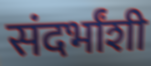
संदर्भांशी